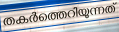
തകർത്തെറിയുന്നത്